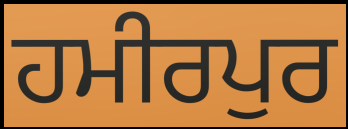
ਹਮੀਰਪੁਰ